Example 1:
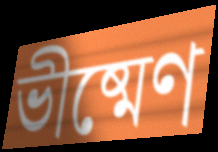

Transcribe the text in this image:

ভীষ্মেণ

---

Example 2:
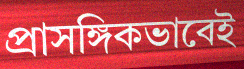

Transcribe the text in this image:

প্রাসঙ্গিকভাবেই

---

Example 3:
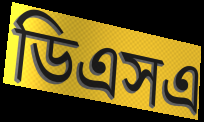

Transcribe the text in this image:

ডিএসএ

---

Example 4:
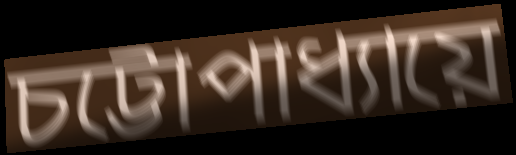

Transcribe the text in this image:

চট্টোপাধ্যায়ে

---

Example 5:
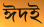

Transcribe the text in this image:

ঈদই